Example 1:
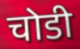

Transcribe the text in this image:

चोडी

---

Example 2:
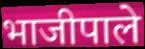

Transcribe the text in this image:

भाजीपाले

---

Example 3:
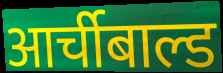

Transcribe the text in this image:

आर्चीबाल्ड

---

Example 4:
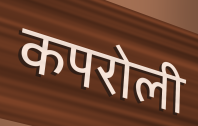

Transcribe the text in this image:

कपरोली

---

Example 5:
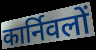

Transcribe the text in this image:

कार्निवलों